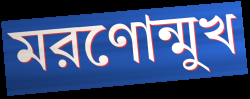
মরণোন্মুখ